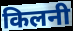
किलनी